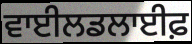
ਵਾਈਲਡਲਾਈਫ਼